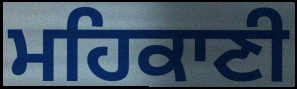
ਮਹਿਕਾਣੀ